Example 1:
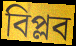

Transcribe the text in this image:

বিপ্লব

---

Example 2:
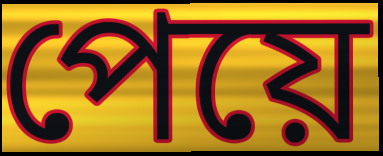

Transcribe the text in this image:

পেয়ে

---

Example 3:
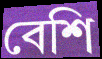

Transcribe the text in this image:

বেশি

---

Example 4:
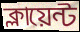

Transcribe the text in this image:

ক্লায়েন্ট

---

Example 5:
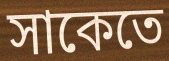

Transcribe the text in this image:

সাকেতে